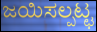
ಜಯಿಸಲ್ಪಟ್ಟ